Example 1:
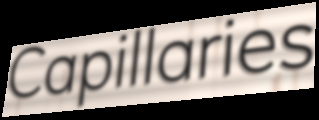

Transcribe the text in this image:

Capillaries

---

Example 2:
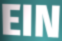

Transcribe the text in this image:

EIN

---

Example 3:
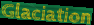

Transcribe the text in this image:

Glaciation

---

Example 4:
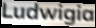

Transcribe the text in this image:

Ludwigia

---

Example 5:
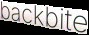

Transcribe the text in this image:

backbite